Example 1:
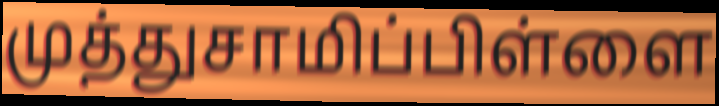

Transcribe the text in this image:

முத்துசாமிப்பிள்ளை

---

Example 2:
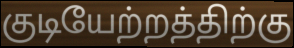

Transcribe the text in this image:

குடியேற்றத்திற்கு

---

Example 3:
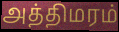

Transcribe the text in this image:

அத்திமரம்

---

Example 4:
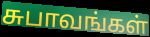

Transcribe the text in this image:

சுபாவங்கள்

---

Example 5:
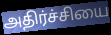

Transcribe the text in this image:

அதிர்ச்சியை